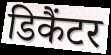
डिकैंटर